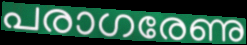
പരാഗരേണു